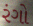
રંગો